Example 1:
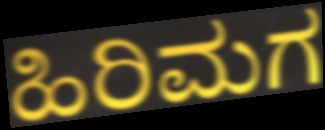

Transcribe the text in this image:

ಹಿರಿಮಗ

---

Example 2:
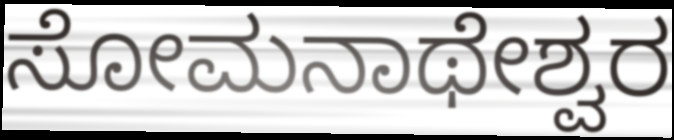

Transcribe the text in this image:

ಸೋಮನಾಥೇಶ್ವರ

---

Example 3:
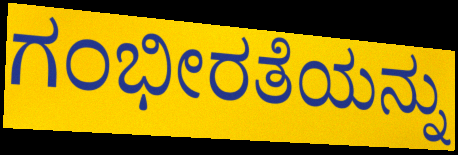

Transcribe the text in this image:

ಗಂಭೀರತೆಯನ್ನು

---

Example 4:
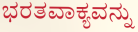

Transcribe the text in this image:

ಭರತವಾಕ್ಯವನ್ನು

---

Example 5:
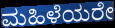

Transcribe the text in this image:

ಮಹಿಳೆಯರೇ